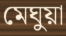
মেঘুয়া